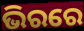
ଭିରରେ